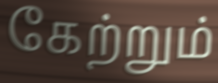
கேற்றும்